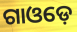
ଗାଓଡ଼େ